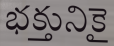
భక్తునికై